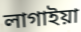
লাগাইয়া